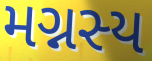
મગ્નસ્ય